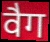
वैग